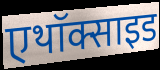
एथॉक्साइड